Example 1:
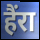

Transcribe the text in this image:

हैंरा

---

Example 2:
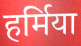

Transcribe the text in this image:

हर्मिया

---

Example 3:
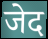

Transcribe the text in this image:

जेद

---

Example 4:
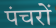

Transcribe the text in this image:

पंचरों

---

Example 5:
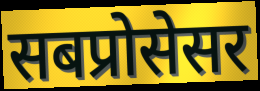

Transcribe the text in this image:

सबप्रोसेसर